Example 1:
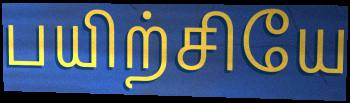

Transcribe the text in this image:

பயிற்சியே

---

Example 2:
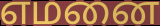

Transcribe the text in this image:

எமனை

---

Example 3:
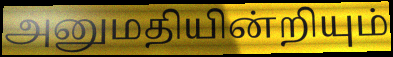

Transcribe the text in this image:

அனுமதியின்றியும்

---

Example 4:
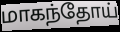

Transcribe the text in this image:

மாகந்தோய்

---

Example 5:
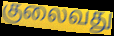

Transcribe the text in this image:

குலைவது